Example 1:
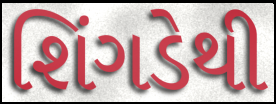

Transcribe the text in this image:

શિંગડેથી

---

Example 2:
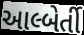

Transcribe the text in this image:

આલ્બેર્તી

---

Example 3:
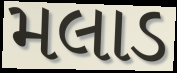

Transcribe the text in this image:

મલાડ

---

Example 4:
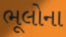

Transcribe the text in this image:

ભૂલોના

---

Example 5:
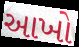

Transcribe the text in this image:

આખો